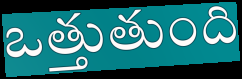
ఒత్తుతుంది